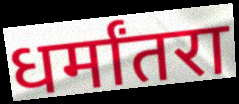
धर्मांतरा